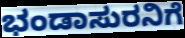
ಭಂಡಾಸುರನಿಗೆ